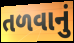
તળવાનું